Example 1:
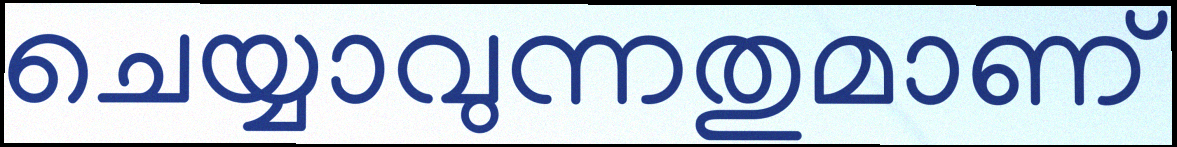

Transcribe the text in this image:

ചെയ്യാവുന്നതുമാണ്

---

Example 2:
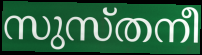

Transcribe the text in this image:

സുസ്തനീ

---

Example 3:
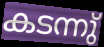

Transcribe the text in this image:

കടന്നു്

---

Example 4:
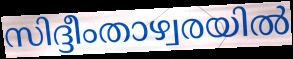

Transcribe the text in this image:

സിദ്ദീംതാഴ്വരയിൽ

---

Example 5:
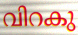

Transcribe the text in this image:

വിറകു